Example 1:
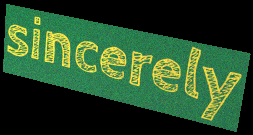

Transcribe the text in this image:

sincerely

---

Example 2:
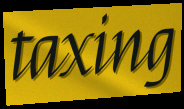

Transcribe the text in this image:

taxing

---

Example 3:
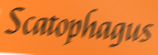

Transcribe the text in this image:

Scatophagus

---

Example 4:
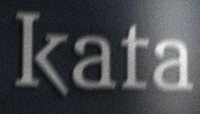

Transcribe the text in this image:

kata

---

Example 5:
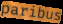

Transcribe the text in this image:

paribus